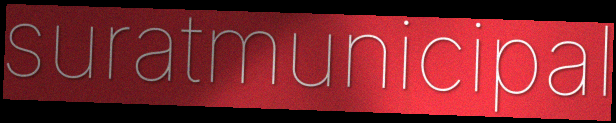
suratmunicipal